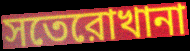
সতেরোখানা